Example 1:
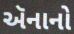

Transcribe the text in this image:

ઍનાનો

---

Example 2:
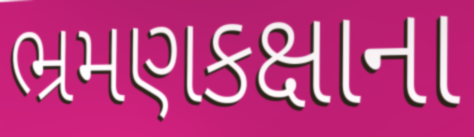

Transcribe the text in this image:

ભ્રમણકક્ષાના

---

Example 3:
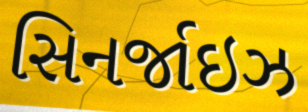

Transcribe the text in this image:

સિનર્જાઇઝ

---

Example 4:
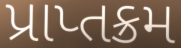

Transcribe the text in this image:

પ્રાપ્તક્રમ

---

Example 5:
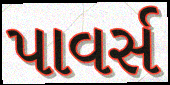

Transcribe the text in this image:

પાવર્સ